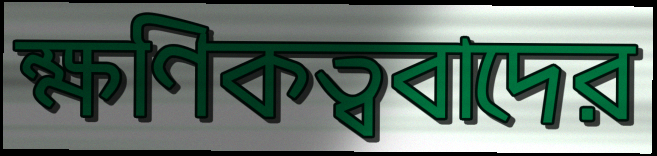
ক্ষণিকত্ববাদের